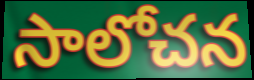
సాలోచన